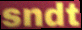
sndt